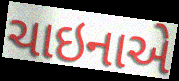
ચાઇનાએ